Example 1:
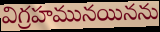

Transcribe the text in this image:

విగ్రహమునయినను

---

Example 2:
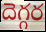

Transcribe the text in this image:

దెగ్గర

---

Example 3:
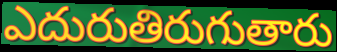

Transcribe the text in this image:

ఎదురుతిరుగుతారు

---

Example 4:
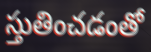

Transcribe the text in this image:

స్తుతించడంతో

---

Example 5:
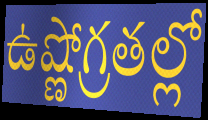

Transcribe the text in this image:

ఉష్ణోగ్రతల్లో